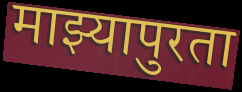
माझ्यापुरता